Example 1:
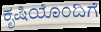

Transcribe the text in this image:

ಕೃಷಿಯೊಂದಿಗೆ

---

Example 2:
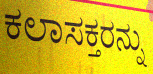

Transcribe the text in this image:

ಕಲಾಸಕ್ತರನ್ನು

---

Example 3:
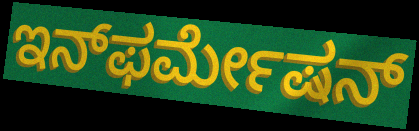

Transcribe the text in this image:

ಇನ್‌ಫರ್ಮೇಷನ್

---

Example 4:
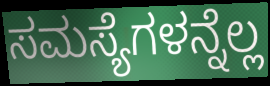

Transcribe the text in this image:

ಸಮಸ್ಯೆಗಳನ್ನೆಲ್ಲ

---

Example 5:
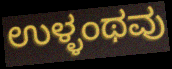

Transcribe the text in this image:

ಉಳ್ಳಂಥವು